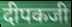
दीपकजी